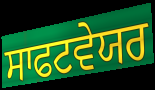
ਸਾਫਟਵੇਯਰ